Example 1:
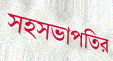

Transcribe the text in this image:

সহসভাপতির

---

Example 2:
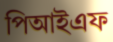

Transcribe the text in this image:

পিআইএফ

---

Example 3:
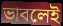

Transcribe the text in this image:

ভাবলেই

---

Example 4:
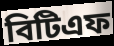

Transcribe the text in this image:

বিটিএফ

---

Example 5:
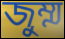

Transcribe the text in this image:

জুম্ম